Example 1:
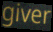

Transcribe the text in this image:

giver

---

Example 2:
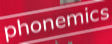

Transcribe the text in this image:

phonemics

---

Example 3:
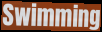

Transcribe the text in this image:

Swimming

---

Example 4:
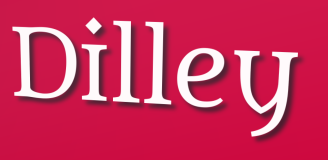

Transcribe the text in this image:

Dilley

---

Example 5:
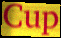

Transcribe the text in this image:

Cup